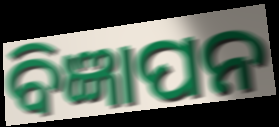
ବିଜ୍ଞାପନ